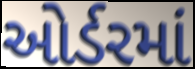
ઓર્ડરમાં